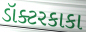
ડૉક્ટરકાકા